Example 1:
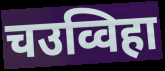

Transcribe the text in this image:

चउव्विहा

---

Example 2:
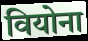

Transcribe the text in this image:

वियोना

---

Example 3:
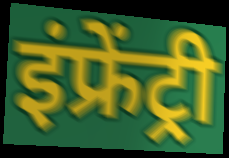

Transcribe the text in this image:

इंफ्रेंट्री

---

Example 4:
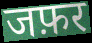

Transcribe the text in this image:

जफ़र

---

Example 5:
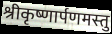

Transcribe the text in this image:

श्रीकृष्णार्पणमस्तु